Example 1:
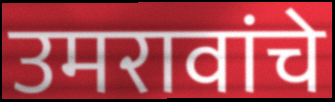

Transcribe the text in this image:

उमरावांचे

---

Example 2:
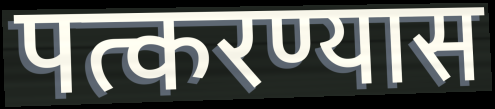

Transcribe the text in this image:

पत्करण्यास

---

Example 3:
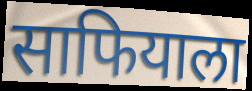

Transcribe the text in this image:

साफियाला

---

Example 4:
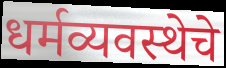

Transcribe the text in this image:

धर्मव्यवस्थेचे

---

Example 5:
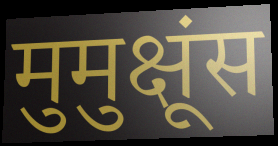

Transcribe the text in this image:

मुमुक्षूंस